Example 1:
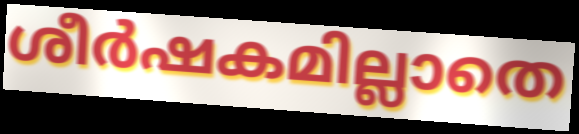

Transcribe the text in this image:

ശീർഷകമില്ലാതെ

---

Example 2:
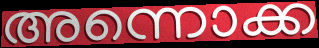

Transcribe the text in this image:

അന്നൊക്ക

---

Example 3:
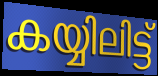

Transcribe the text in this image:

കയ്യിലിട്ട്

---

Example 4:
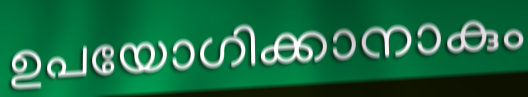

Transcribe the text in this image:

ഉപയോഗിക്കാനാകും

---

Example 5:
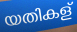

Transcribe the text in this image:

യതികള്